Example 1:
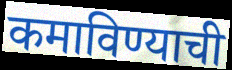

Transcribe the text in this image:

कमाविण्याची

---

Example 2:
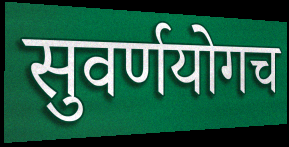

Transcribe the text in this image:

सुवर्णयोगच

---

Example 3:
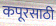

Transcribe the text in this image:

कपूरसाठी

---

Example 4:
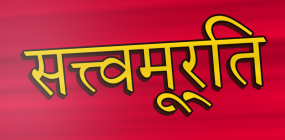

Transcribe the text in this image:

सत्त्वमूर्ति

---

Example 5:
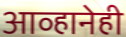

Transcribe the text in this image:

आव्हानेही